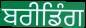
ਬਰੀਡਿੰਗ